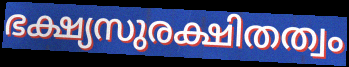
ഭക്ഷ്യസുരക്ഷിതത്വം